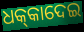
ଧକ୍‌କାଦେଇ